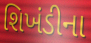
શિખંડીના